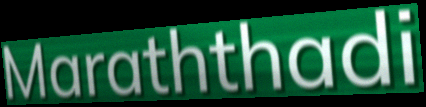
Maraththadi